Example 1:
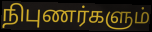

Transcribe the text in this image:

நிபுணர்களும்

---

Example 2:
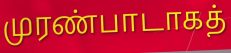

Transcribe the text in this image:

முரண்பாடாகத்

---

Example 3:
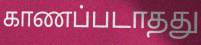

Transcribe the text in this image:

காணப்படாதது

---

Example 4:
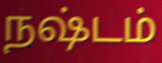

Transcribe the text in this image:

நஷ்டம்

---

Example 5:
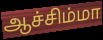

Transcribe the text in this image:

ஆச்சிம்மா